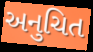
અનુચિત